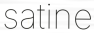
satine